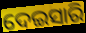
ଦେଇସାରି